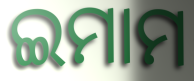
ଇମାମ